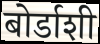
बोर्डाशी